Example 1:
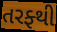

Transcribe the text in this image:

તરફ્થી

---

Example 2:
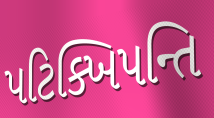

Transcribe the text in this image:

પટિક્ખિપન્તિ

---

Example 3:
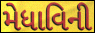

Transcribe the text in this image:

મેધાવિની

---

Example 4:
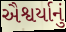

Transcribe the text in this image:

ઐશ્વર્યાનું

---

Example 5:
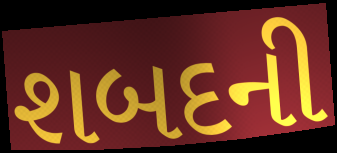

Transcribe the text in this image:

શબદની